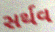
સર્થવ